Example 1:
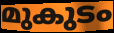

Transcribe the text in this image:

മുകുടം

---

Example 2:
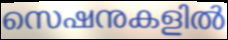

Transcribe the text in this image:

സെഷനുകളിൽ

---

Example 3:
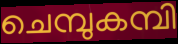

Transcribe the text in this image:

ചെമ്പുകമ്പി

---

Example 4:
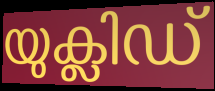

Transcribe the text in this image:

യുക്ലിഡ്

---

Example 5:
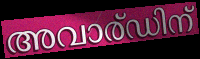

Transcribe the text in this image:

അവാര്ഡിന്